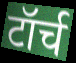
टॉर्च